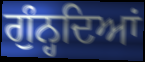
ਗੁੰਨ੍ਹਦਿਆਂ